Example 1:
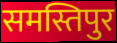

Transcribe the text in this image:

समस्तिपुर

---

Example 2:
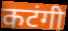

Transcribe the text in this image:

कटंगी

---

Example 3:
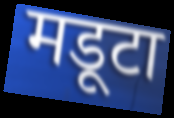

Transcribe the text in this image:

मडूटा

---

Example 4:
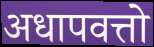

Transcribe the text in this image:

अधापवत्तो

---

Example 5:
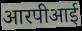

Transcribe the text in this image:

आरपीआई